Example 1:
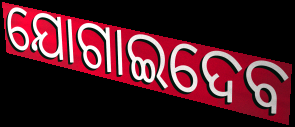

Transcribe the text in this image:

ଯୋଗାଇଦେବ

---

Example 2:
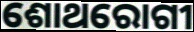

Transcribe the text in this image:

ଶୋଥରୋଗୀ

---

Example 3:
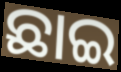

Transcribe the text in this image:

ଛାଇ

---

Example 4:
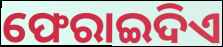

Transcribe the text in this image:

ଫେରାଇଦିଏ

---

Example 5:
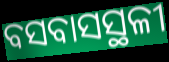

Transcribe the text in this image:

ବସବାସସ୍ଥଳୀ